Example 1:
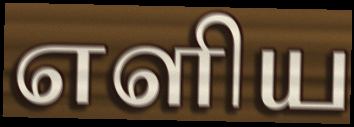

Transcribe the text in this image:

எளிய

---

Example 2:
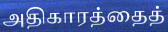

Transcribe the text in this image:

அதிகாரத்தைத்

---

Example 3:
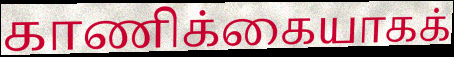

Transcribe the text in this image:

காணிக்கையாகக்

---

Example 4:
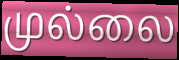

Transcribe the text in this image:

முல்லை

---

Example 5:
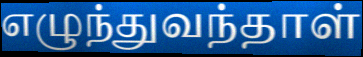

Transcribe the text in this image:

எழுந்துவந்தாள்